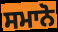
ਸਮਾਨੋ